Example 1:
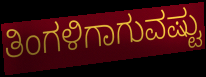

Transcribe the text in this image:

ತಿಂಗಳಿಗಾಗುವಷ್ಟು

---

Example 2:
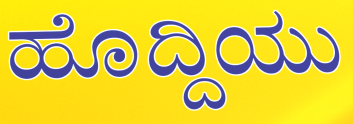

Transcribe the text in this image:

ಹೊದ್ದಿಯು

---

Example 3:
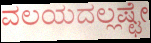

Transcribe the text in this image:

ವಲಯದಲ್ಲಷ್ಟೇ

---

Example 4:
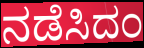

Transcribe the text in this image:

ನಡೆಸಿದಂ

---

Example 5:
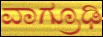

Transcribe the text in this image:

ವಾಗ್ರೂಢಿ